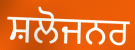
ਸ਼ਲੋਜਨਰ